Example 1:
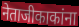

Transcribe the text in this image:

नेताजीकाकांना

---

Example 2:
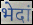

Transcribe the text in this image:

भेदां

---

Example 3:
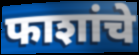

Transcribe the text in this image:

फाशांचे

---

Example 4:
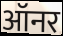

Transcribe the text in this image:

ऑनर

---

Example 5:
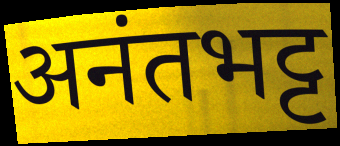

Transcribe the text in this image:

अनंतभट्ट